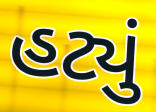
હટ્યું